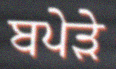
ਬਪੇੜੇ